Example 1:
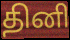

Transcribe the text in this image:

தினி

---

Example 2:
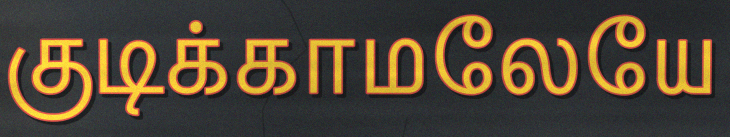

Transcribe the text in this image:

குடிக்காமலேயே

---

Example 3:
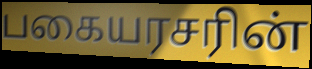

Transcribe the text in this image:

பகையரசரின்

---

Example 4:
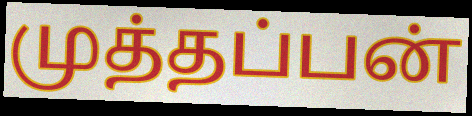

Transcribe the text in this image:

முத்தப்பன்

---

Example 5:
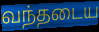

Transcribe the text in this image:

வந்தடைய